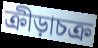
ক্রীড়াচক্র